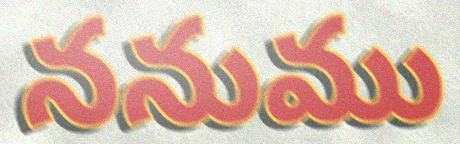
ననుము